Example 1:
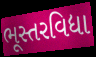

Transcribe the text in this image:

ભૂસ્તરવિદ્યા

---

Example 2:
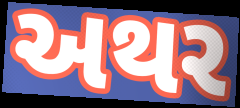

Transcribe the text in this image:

અથર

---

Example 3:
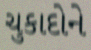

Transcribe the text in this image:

ચુકાદોને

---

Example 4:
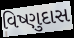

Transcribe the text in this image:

વિષ્ણુદાસ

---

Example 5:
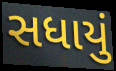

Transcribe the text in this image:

સધાયું